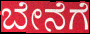
ಬೇನೆಗೆ